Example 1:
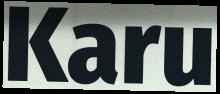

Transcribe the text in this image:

Karu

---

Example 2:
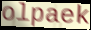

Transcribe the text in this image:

olpaek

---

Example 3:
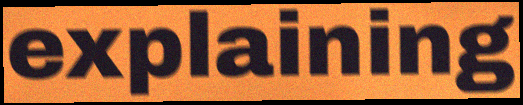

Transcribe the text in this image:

explaining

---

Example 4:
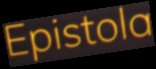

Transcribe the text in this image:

Epistola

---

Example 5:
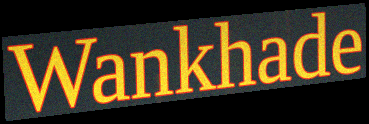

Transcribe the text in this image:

Wankhade